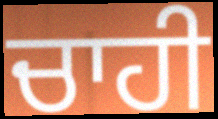
ਚਾਹੀ